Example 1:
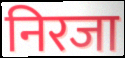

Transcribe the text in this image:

निरजा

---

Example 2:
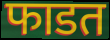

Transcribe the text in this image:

फाडत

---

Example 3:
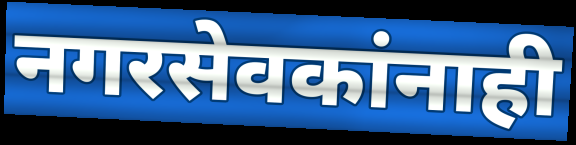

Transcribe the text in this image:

नगरसेवकांनाही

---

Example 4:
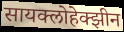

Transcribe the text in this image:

सायक्लोहेक्झीन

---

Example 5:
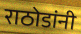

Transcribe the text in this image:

राठोडांनी